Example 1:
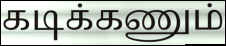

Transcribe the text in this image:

கடிக்கணும்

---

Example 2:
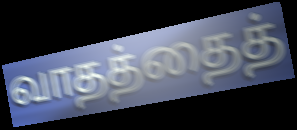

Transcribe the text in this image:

வாதத்தைத்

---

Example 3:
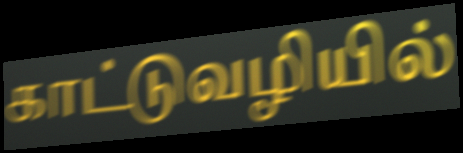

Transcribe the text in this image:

காட்டுவழியில்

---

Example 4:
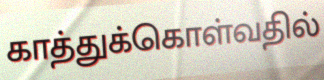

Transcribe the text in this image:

காத்துக்கொள்வதில்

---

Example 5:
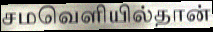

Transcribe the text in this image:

சமவெளியில்தான்